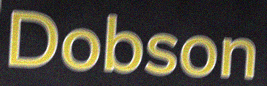
Dobson